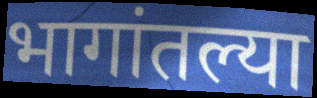
भागांतल्या